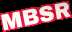
MBSR